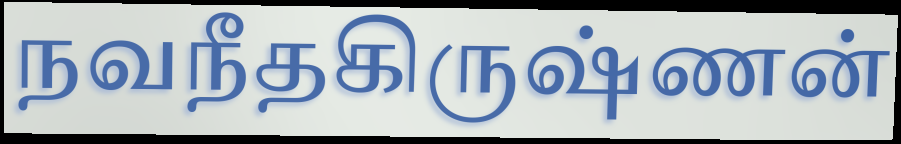
நவநீதகிருஷ்ணன்